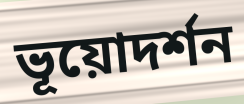
ভূয়োদর্শন